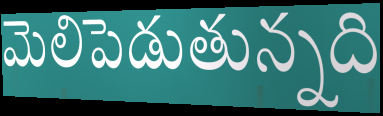
మెలిపెడుతున్నది